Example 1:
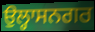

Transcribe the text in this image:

ਉਲ੍ਹਾਸਨਗਰ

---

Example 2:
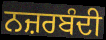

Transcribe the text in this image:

ਨਜ਼ਰਬੰਦੀ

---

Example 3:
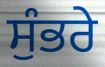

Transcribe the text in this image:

ਸੁੰਭਰੇ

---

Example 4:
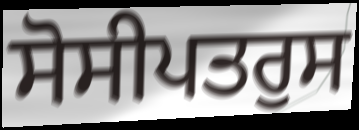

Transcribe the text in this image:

ਸੋਸੀਪਤਰੁਸ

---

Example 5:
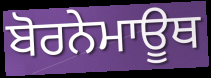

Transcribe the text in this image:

ਬੋਰਨੇਮਾਊਥ